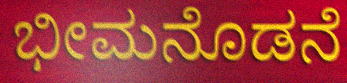
ಭೀಮನೊಡನೆ